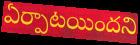
ఏర్పాటయిందని